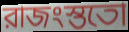
রাজংস্ততো